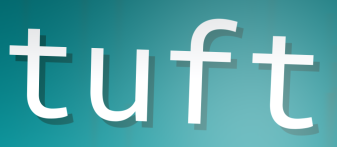
tuft